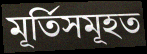
মূৰ্তিসমূহত